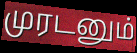
முரடனும்